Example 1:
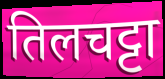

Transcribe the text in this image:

तिलचट्टा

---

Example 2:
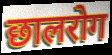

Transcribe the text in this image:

छालरोग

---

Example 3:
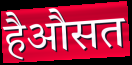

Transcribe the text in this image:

हैऔसत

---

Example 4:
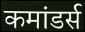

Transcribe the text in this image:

कमांडर्स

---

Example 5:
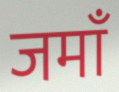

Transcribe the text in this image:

जमाँ